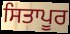
ਸਿਤਾਪੂਰ